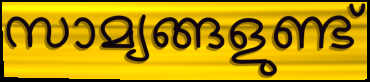
സാമ്യങ്ങളുണ്ട്